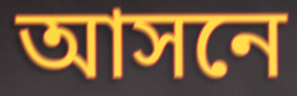
আসনে